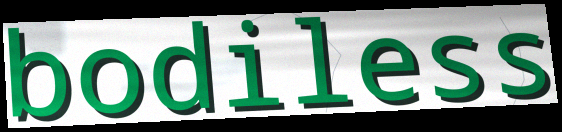
bodiless